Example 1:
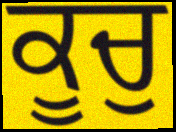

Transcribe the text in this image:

ਕੂਚੁ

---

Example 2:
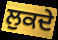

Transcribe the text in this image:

ਲੁਕਦੇ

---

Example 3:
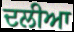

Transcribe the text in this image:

ਦਲੀਆ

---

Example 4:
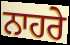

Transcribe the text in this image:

ਨਾਹਰੇ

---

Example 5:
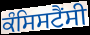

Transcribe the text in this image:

ਕੰਸਿਸਟੈਂਸੀ